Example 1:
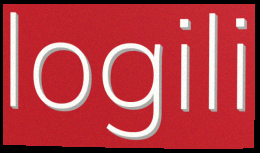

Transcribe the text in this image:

logili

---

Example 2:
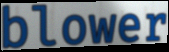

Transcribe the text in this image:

blower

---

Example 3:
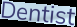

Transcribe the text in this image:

Dentist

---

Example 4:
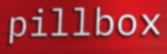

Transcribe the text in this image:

pillbox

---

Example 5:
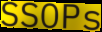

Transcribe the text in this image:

SSOPs